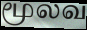
மூலவ